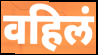
वहिलं